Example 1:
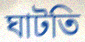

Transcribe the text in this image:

ঘাটতি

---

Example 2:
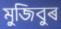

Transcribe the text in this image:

মুজিবুৰ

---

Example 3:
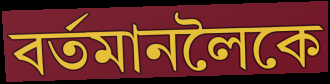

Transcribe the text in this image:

বৰ্তমানলৈকে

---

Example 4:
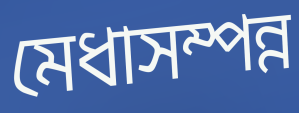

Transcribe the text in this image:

মেধাসম্পন্ন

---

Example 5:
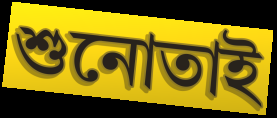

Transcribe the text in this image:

শুনোতাই